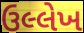
ઉલ્લેખ